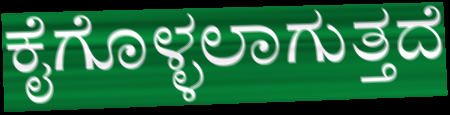
ಕೈಗೊಳ್ಳಲಾಗುತ್ತದೆ